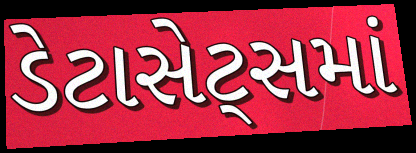
ડેટાસેટ્સમાં